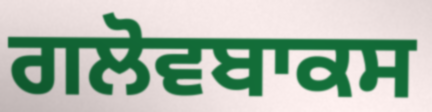
ਗਲੋਵਬਾਕਸ